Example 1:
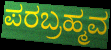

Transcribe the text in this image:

ಪರಬ್ರಹ್ಮವ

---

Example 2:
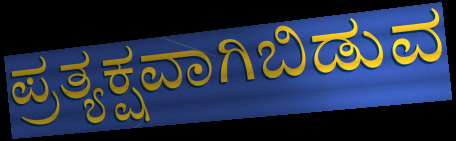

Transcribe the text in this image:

ಪ್ರತ್ಯಕ್ಷವಾಗಿಬಿಡುವ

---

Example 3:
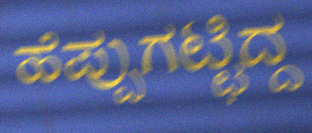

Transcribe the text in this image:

ಹೆಪ್ಪುಗಟ್ಟಿದ್ದ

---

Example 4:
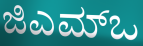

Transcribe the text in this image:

ಜಿಎಮ್ಒ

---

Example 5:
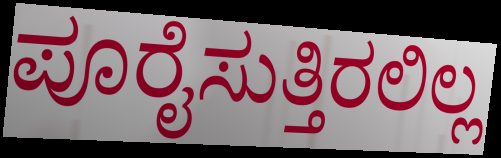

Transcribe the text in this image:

ಪೂರೈಸುತ್ತಿರಲಿಲ್ಲ